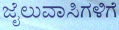
ಜೈಲುವಾಸಿಗಳಿಗೆ